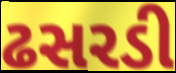
ઢસરડી